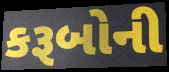
કરૂબોની